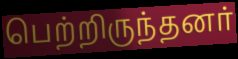
பெற்றிருந்தனர்